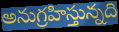
అనుగ్రహిస్తున్నది